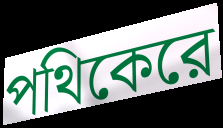
পথিকেরে